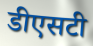
डीएसटी